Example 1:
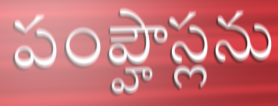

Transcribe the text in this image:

పంప్హౌస్లను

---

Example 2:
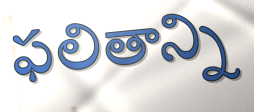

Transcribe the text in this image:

ఫలితాన్ని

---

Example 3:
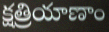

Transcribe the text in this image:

క్షత్రియాణాం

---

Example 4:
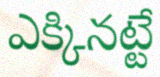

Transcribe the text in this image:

ఎక్కినట్టే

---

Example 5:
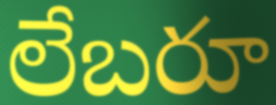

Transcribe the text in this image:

లేబరూ